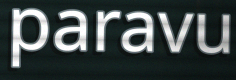
paravu